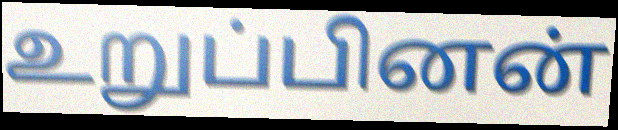
உறுப்பினன்